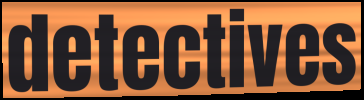
detectives